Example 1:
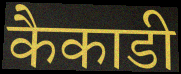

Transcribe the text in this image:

कैकाडी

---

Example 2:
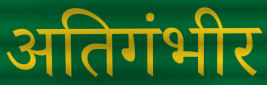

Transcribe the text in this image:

अतिगंभीर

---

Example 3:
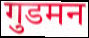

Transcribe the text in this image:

गुडमन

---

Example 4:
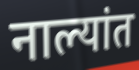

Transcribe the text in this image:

नाल्यांत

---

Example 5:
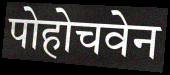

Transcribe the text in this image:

पोहोचवेन